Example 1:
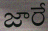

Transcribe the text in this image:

జారే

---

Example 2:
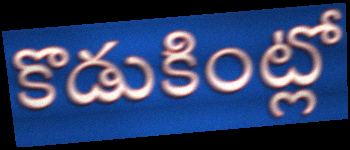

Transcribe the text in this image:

కొడుకింట్లో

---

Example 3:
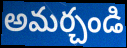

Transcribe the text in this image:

అమర్చండి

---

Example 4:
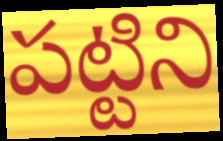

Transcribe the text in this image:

పట్టిని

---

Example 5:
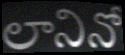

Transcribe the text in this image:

లానినో